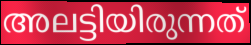
അലട്ടിയിരുന്നത്